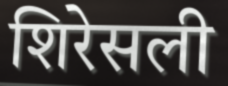
शिरेसली